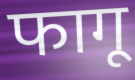
फागू